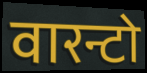
वारन्टो